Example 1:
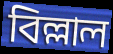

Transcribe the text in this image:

বিল্লাল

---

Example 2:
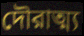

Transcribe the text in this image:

দৌরাত্ম্য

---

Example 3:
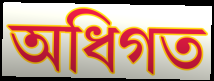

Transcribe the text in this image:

অধিগত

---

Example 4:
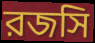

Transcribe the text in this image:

রজসি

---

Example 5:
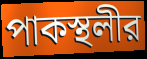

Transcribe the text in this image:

পাকস্থলীর